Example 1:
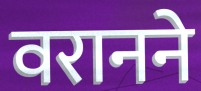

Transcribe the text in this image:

वरानने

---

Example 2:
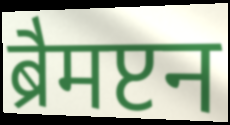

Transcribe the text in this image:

ब्रैमप्टन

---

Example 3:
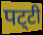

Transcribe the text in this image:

पट्‌टी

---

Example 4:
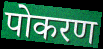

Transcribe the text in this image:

पोकरण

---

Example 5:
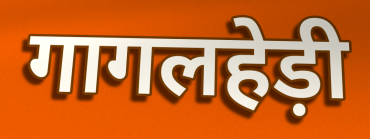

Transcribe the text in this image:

गागलहेड़ी